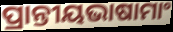
ପ୍ରାନ୍ତୀୟଭାଷାମାଂ